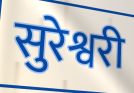
सुरेश्वरी